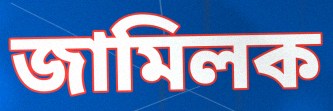
জামিলক